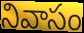
నివాసం